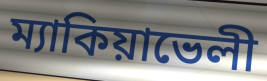
ম্যাকিয়াভেলী